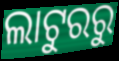
ଲାଟୁରରୁ